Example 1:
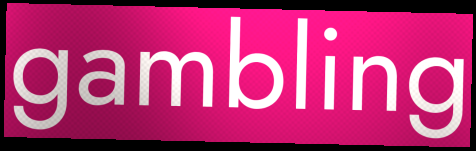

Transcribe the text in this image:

gambling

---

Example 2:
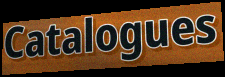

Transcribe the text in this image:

Catalogues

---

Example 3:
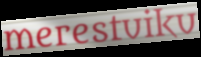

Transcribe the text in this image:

merestuiku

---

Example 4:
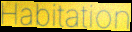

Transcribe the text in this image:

Habitation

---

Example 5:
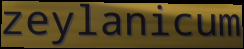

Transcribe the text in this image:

zeylanicum